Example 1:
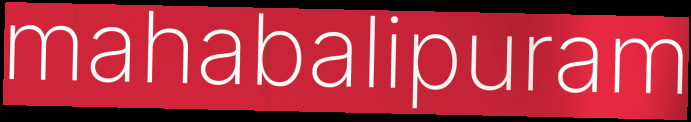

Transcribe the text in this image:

mahabalipuram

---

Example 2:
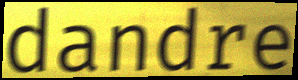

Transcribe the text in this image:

dandre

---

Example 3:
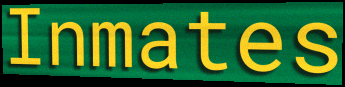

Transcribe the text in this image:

Inmates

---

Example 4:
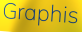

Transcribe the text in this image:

Graphis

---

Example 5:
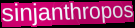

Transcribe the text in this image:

sinjanthropos